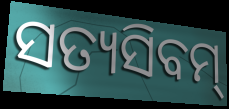
ସତ୍ୟସିବମ୍